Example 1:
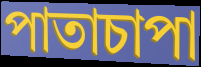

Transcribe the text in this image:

পাতাচাপা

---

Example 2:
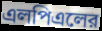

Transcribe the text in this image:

এলপিএলের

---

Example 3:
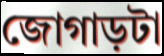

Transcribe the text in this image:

জোগাড়টা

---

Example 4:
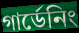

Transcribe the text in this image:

গার্ডেনিং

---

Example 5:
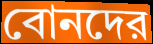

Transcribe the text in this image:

বোনদের